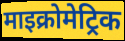
माइक्रोमेट्रिक